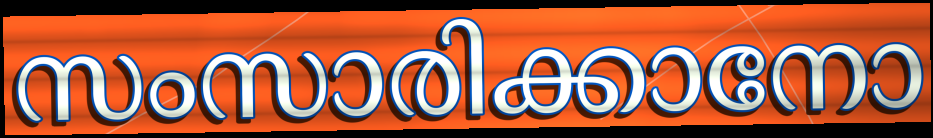
സംസാരിക്കാനോ